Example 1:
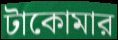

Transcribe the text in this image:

টাকোমার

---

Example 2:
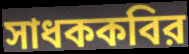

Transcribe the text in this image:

সাধককবির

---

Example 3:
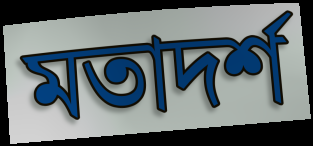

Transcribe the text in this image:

মতাদর্শ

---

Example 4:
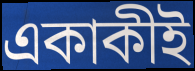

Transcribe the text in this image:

একাকীই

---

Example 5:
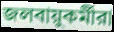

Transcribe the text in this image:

জলবায়ুকর্মীরা